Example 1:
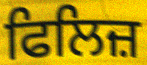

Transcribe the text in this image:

ਫਿਲਿਜ਼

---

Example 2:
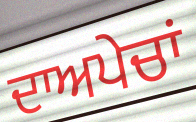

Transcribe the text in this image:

ਦਾਅਪੇਚਾਂ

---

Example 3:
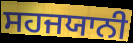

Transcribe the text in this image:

ਸਹਜਯਾਨੀ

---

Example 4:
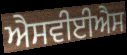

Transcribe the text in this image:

ਐਸਵੀਈਐਸ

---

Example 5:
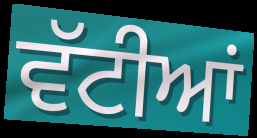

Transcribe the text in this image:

ਵੱਟੀਆਂ